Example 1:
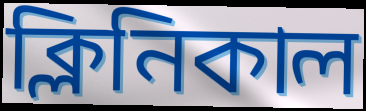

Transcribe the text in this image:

ক্লিনিকাল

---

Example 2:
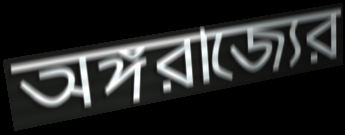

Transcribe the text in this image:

অঙ্গরাজ্যের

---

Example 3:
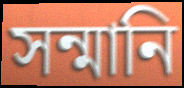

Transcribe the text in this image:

সন্মানি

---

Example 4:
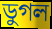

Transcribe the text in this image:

ডুগল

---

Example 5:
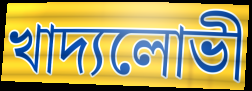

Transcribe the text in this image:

খাদ্যলোভী